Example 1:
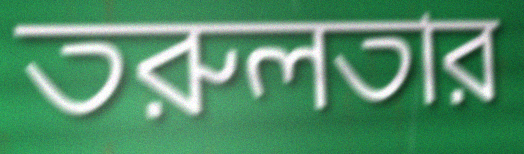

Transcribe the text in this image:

তরুলতার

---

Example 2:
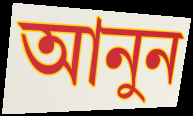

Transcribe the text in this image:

আনুন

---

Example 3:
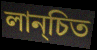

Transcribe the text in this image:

লান্চিত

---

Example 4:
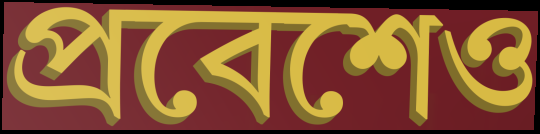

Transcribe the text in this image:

প্রবেশেও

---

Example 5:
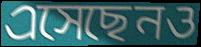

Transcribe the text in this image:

এসেছেনও